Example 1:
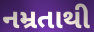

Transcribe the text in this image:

નમ્રતાથી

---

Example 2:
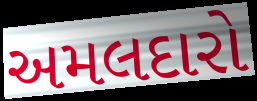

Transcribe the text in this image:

અમલદારો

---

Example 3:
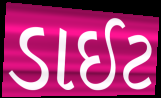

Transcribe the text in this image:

ડાઈટ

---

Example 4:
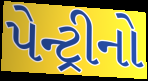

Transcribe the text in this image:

પેન્ટ્રીનો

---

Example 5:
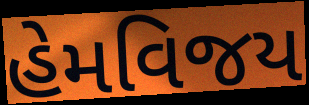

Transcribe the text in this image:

હેમવિજય